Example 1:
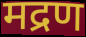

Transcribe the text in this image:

मद्रण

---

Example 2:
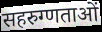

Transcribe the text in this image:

सहरुग्णताओं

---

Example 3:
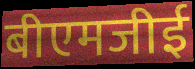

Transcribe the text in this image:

बीएमजीई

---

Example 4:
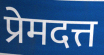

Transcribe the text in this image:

प्रेमदत्त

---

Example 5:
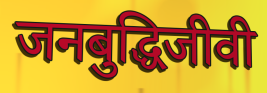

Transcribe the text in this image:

जनबुद्धिजीवी